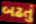
બઢતું